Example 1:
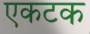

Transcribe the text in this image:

एकटक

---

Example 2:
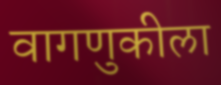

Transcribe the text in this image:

वागणुकीला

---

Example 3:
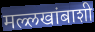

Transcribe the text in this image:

मल्लखांबाशी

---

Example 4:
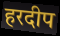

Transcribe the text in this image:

हरदीप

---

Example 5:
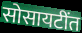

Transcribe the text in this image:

सोसायटींत